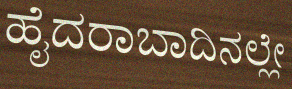
ಹೈದರಾಬಾದಿನಲ್ಲೇ